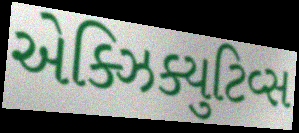
એક્ઝિક્યુટિવ્સ